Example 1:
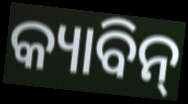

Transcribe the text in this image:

କ୍ୟାବିନ୍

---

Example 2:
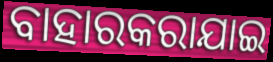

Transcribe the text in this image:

ବାହାରକରାଯାଇ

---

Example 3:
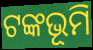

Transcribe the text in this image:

ଟଙ୍କଭୂମି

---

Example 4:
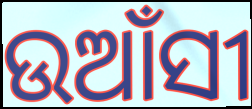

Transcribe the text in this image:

ଉଆଁସୀ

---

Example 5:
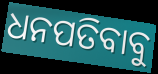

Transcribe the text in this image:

ଧନପତିବାବୁ